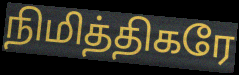
நிமித்திகரே